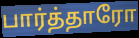
பார்த்தாரோ